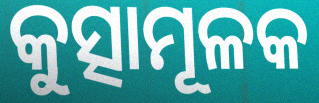
କୁତ୍ସାମୂଳକ